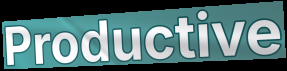
Productive